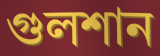
গুলশান